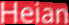
Heian